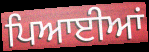
ਪਿਆਈਆਂ